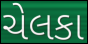
ચેલકા